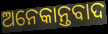
ଅନେକାନ୍ତବାଦ